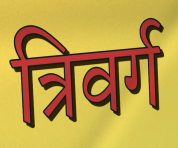
त्रिवर्ग